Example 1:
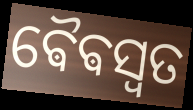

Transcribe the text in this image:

ଵୈଵସ୍ୱତ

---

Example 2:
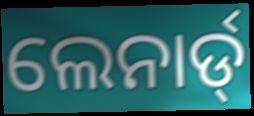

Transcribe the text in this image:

ଲେନାର୍ଡ୍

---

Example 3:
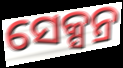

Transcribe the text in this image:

ସେକ୍ସନ୍ର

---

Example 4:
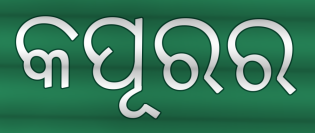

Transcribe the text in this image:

କପୂରର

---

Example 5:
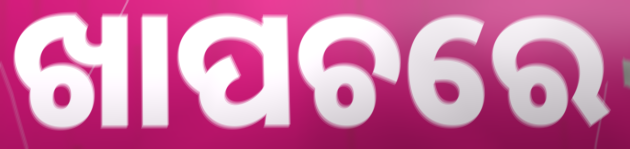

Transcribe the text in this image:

ଖାପଚରେ